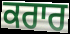
ਕਰਾਰ